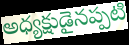
అధ్యక్షుడైనప్పటి